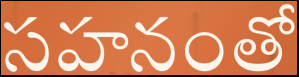
సహనంతో